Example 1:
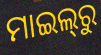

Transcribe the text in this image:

ମାଇଲ୍‌ରୁ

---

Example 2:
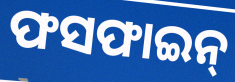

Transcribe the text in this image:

ଫସଫାଇନ୍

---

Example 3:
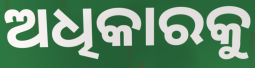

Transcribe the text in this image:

ଅଧିକାରକୁ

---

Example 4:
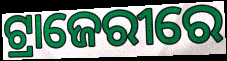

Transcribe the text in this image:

ଟ୍ରାଜେରୀରେ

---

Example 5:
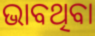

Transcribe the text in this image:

ଭାବଥିବା